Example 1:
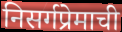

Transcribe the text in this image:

निसर्गप्रेमाची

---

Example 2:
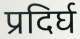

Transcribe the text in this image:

प्रदिर्घ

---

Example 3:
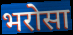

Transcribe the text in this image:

भरोसा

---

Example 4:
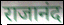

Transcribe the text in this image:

राजानंद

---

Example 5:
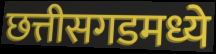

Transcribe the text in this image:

छत्तीसगडमध्ये